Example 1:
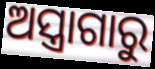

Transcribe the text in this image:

ଅସ୍ତ୍ରାଗାରୁ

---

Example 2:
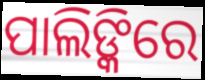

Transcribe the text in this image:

ପାଲିଙ୍କିରେ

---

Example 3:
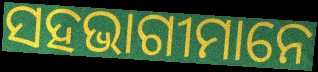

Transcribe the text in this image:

ସହଭାଗୀମାନେ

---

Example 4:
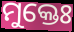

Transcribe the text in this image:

ମୁକ୍ତେଃ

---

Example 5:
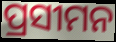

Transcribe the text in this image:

ପ୍ରସୀମନ